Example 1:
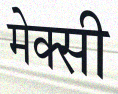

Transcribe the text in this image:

मेक्सी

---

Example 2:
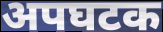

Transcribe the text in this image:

अपघटक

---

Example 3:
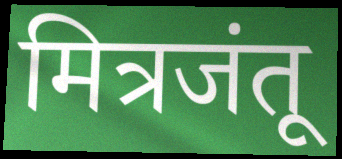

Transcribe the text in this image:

मित्रजंतू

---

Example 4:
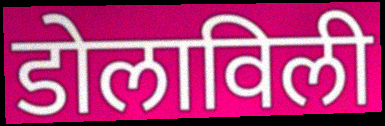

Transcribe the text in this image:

डोलाविली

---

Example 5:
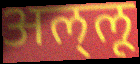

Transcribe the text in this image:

अल्लू